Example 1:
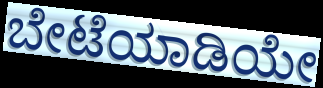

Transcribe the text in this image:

ಬೇಟೆಯಾಡಿಯೇ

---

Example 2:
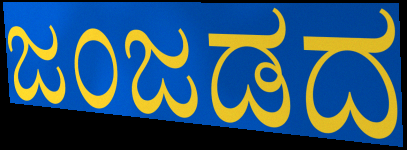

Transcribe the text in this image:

ಜಂಜಡದ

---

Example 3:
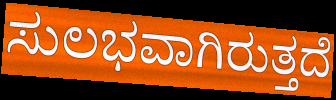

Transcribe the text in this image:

ಸುಲಭವಾಗಿರುತ್ತದೆ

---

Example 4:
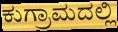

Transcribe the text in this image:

ಕುಗ್ರಾಮದಲ್ಲಿ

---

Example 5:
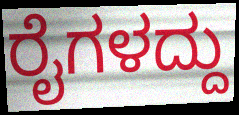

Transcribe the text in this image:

ರೈಗಳದ್ದು